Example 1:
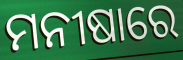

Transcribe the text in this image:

ମନୀଷାରେ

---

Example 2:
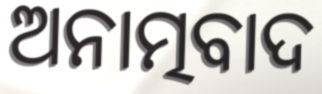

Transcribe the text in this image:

ଅନାତ୍ମବାଦ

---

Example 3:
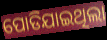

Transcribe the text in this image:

ପୋଡିଯାଇଥିଲା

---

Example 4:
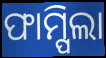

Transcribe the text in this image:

ଫାମ୍ପିଲା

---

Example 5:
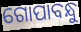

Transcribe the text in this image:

ଗୋପାବନ୍ଧୁ